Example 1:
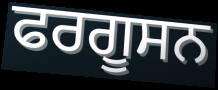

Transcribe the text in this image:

ਫਰਗੂਸਨ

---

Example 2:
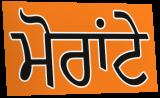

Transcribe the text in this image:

ਮੋਰਾਂਟੇ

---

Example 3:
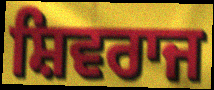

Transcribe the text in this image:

ਸ਼ਿਵਰਾਜ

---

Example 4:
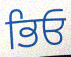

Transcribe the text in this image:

ਭਿਓ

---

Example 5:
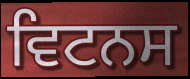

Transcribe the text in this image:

ਵਿਟਨਸ